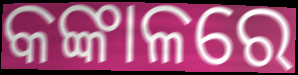
କଙ୍କାଳରେ